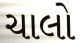
ચાલો